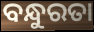
ବନ୍ଧୁରତା